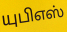
யுபிஎஸ்